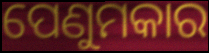
ପେଣୁମକାର